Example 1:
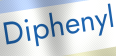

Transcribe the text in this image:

Diphenyl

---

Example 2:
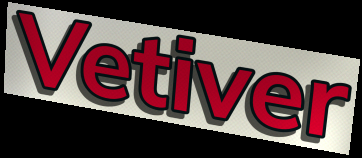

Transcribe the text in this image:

Vetiver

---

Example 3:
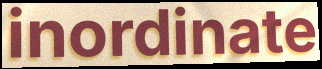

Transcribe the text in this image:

inordinate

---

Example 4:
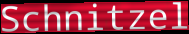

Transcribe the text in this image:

Schnitzel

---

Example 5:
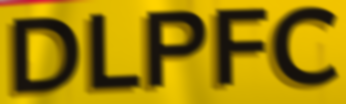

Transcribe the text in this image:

DLPFC